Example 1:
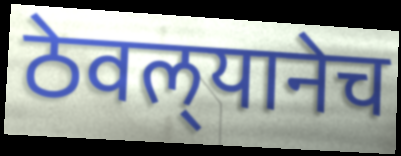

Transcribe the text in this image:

ठेवल्यानेच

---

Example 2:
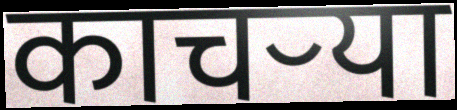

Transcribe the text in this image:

काचऱ्या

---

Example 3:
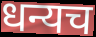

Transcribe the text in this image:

धन्यच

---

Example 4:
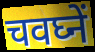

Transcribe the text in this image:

चवघ्नें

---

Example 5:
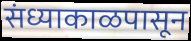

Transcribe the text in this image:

संध्याकाळपासून